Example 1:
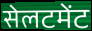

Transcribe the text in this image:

सेलटमेंट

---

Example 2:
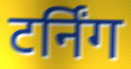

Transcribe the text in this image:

टर्निंग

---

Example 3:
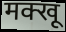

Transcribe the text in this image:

मक्खू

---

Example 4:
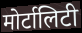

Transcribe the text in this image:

मोर्टालिटी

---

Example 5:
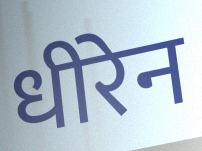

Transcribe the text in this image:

धीरेन